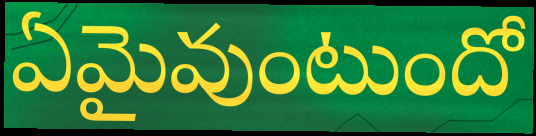
ఏమైవుంటుందో